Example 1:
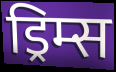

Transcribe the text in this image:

ड्रिम्स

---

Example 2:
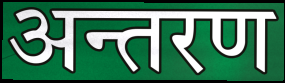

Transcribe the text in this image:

अन्तरण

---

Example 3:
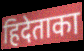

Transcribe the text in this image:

हिदेताका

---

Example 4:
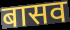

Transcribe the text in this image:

बासव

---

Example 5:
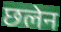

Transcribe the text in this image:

छलेन